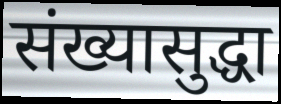
संख्यासुद्धा